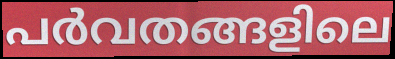
പർവതങ്ങളിലെ